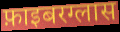
फ़ाइबरग्लास